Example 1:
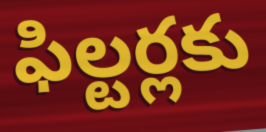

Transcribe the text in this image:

ఫిల్టర్లకు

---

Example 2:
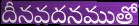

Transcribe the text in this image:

దీనవదనముతో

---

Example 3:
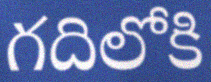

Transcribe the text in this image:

గదిలోకి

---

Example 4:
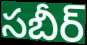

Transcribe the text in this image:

సబీర్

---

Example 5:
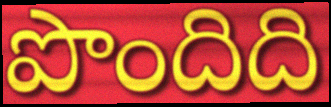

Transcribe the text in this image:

పొందిది